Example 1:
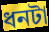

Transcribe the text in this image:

ধনটা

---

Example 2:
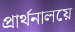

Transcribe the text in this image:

প্রার্থনালয়ে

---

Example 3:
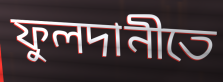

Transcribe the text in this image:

ফুলদানীতে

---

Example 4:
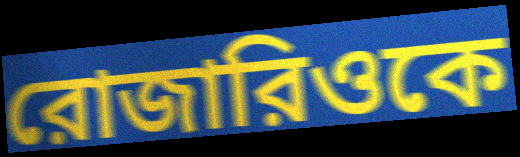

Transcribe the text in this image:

রোজারিওকে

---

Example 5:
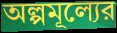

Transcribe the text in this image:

অল্পমূল্যের